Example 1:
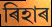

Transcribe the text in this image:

ৰিহাৰ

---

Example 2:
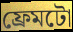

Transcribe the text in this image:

ফ্ৰেমটো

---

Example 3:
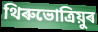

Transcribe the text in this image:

থিৰুভোত্ৰিয়ুৰ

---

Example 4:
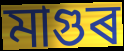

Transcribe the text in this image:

মাগুৰ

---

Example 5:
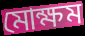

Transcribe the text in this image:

মোক্ষম